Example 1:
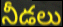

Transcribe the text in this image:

నీడలు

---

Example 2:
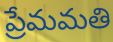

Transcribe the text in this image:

ప్రేమమతి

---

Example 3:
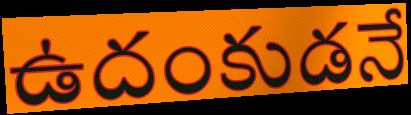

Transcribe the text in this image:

ఉదంకుడనే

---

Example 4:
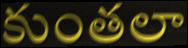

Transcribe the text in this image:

కుంతలా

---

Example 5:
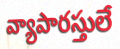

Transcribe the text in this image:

వ్యాపారస్తులే